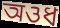
অওধ